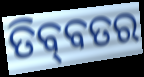
ତିବ୍‌ବତର